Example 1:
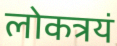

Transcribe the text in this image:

लोकत्रयं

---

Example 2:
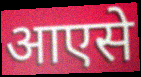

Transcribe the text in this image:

आएसे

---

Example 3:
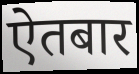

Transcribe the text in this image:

ऐतबार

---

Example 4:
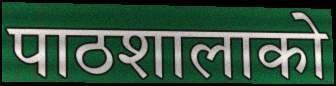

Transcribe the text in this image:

पाठशालाको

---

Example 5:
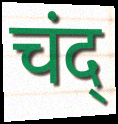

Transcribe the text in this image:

चंद्